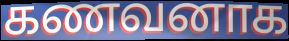
கணவனாக